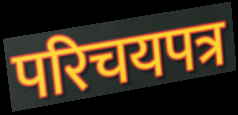
परिचयपत्र